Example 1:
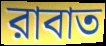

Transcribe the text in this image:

রাবাত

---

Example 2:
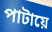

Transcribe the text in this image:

পাটায়ে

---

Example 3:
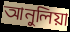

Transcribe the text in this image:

আনুলিয়া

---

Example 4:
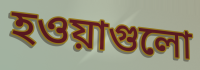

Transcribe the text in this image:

হওয়াগুলো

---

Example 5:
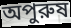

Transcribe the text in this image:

অপুরুষ